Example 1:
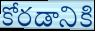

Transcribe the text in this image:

కోరడానికి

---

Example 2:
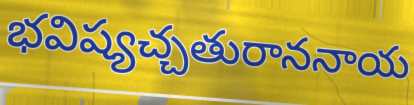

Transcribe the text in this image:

భవిష్యచ్చతురాననాయ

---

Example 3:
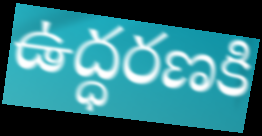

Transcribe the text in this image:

ఉద్ధరణకి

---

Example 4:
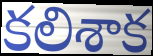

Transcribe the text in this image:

కలిశాక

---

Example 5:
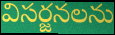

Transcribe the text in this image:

విసర్జనలను